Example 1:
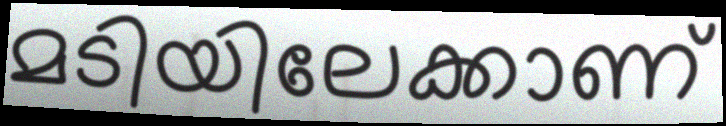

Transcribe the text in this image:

മടിയിലേക്കാണ്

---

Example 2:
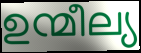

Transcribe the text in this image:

ഉന്മീല്യ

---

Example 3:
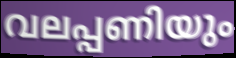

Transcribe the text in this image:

വലപ്പണിയും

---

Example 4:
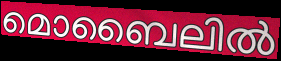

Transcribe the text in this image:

മൊബൈലിൽ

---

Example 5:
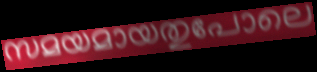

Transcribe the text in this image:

സമയമായതുപോലെ